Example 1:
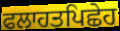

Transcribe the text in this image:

ਫਲਾਹਤਪਿਛੇਹ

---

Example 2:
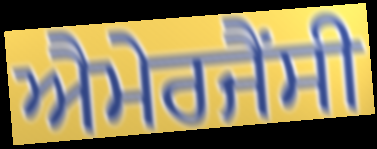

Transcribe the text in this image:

ਐਮੇਰਜੈਂਸੀ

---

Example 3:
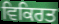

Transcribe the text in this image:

ਵਿਕਿਰਤ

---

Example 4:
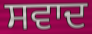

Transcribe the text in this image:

ਸਵਾਦ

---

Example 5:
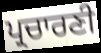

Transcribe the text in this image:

ਪ੍ਰਚਾਰਣੀ